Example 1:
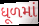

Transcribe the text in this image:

ધૂળમાં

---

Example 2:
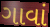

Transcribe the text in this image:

ગાવાં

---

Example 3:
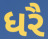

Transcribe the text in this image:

ધરૈ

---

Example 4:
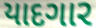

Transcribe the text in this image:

યાદગાર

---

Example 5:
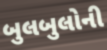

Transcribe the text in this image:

બુલબુલોની